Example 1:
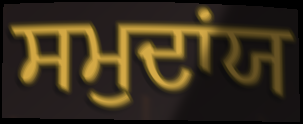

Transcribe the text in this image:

ਸਮੁਦਾਂਯ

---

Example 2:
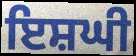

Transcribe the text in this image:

ਇਸ਼ਘੀ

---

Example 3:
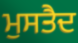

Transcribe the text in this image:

ਮੁਸਤੈਦ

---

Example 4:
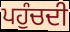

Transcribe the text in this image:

ਪਹੁੰਚਦੀ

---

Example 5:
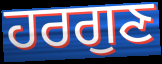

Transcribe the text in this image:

ਹਰਗੁਣ